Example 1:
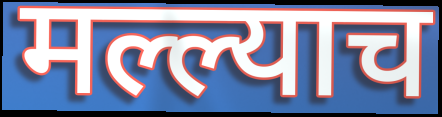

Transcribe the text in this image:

मल्ल्याच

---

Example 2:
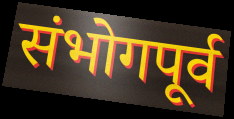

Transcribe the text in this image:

संभोगपूर्व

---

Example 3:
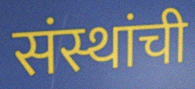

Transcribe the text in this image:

संस्थांची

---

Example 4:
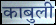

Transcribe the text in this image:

काबुली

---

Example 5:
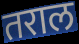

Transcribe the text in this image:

तराल